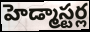
హెడ్మాస్టర్ల